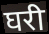
घरी